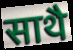
साथै